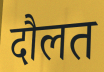
दौलत